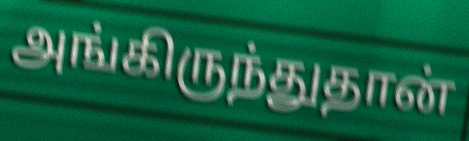
அங்கிருந்துதான்